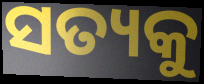
ସତ୍ୟକୁ